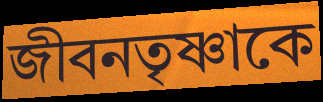
জীবনতৃষ্ণাকে